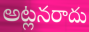
అట్లనరాదు